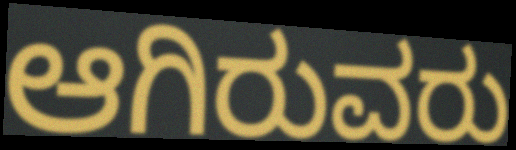
ಆಗಿರುವರು